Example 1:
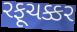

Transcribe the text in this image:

રફૂચક્કર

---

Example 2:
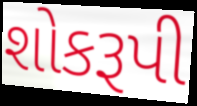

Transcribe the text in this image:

શોકરૂપી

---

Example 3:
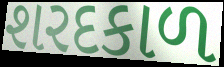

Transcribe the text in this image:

શરદકાળ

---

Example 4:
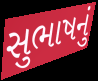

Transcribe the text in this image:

સુભાષનું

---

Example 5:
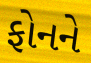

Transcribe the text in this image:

ફોનને